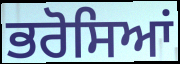
ਭਰੋਸਿਆਂ